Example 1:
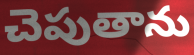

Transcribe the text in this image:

చెపుతాను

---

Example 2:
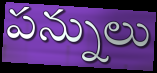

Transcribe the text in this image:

పన్నులు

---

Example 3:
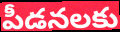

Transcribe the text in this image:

పీడనలకు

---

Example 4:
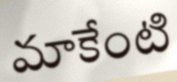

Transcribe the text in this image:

మాకేంటి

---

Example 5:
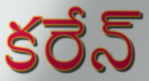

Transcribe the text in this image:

కరేన్